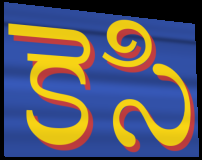
కెసి